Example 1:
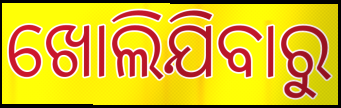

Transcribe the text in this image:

ଖୋଲିଯିବାରୁ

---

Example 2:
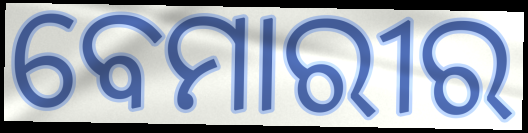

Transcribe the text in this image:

ବେମାରୀର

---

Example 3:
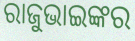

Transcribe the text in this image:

ରାଜୁଭାଇଙ୍କର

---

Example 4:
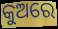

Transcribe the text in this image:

କୁଅରେ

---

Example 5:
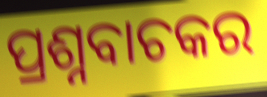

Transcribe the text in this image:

ପ୍ରଶ୍ନବାଚକର